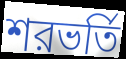
শরভর্তি